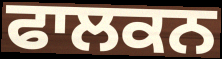
ਫਾਲਕਨ